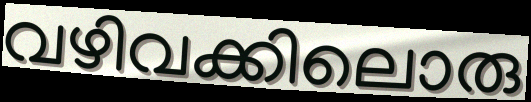
വഴിവക്കിലൊരു